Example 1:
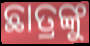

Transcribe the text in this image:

ଛାତ୍ରଙ୍କୁ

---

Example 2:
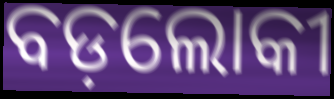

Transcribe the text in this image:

ବଡ଼ଲୋକୀ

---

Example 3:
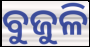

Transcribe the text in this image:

ବୁଜୁଳି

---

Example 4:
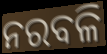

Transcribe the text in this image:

ନରବଳି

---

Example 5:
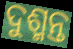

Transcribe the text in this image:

ଦୁଶ୍ମନ୍ତ